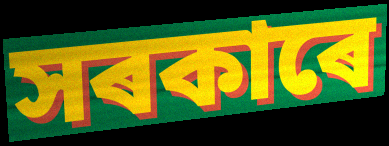
সৰকাৰে